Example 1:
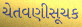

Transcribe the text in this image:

ચેતવણીસૂચક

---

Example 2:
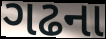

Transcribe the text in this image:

ગઢના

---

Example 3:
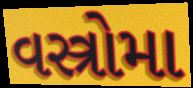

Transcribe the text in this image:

વસ્ત્રોમા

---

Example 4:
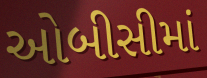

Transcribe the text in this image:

ઓબીસીમાં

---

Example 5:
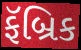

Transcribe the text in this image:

ફૅબ્રિક